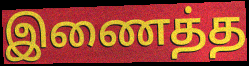
இணைத்த